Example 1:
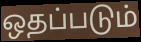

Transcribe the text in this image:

ஒதப்படும்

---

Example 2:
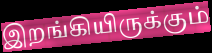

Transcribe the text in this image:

இறங்கியிருக்கும்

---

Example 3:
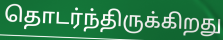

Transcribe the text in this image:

தொடர்ந்திருக்கிறது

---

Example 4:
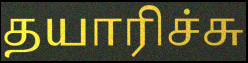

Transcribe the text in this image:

தயாரிச்சு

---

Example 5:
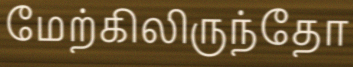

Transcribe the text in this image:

மேற்கிலிருந்தோ